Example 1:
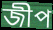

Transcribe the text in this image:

জীপ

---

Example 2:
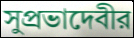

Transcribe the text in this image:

সুপ্রভাদেবীর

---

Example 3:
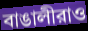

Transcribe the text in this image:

বাঙালীরাও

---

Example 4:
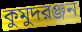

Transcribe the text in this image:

কুমুদরঞ্জন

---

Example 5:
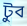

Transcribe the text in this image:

টুব